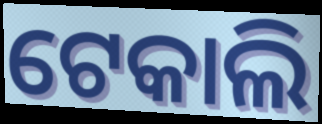
ଟେକାଲି